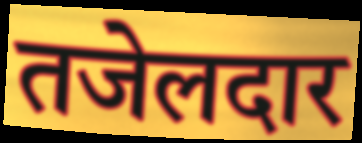
तजेलदार